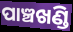
ପାଞ୍ଚଖଣ୍ଡି